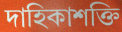
দাহিকাশক্তি